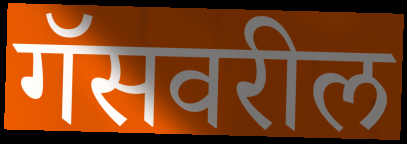
गॅसवरील